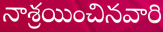
నాశ్రయించినవారి